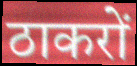
ठाकरों